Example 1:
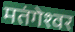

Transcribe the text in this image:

मतंगेश्वर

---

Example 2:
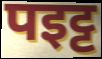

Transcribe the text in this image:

पइट्ट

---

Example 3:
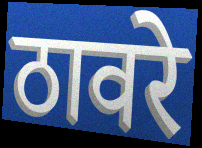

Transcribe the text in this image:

ठावरे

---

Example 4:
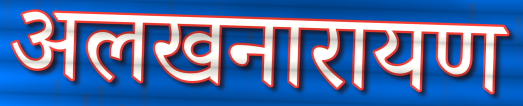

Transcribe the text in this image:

अलखनारायण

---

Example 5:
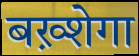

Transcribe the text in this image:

बख़्शेगा